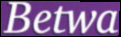
Betwa